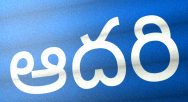
ఆదరి